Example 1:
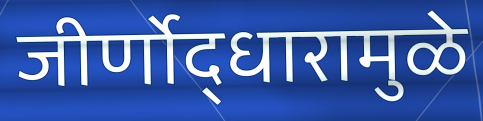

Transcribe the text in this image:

जीर्णोद्धारामुळे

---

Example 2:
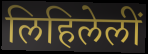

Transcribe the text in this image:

लिहिलेलीं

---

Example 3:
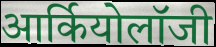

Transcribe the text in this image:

आर्कियोलॉजी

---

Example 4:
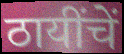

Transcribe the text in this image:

ठायींचें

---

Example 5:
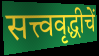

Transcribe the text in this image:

सत्त्ववृद्धीचें